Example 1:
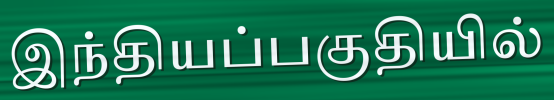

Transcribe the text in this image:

இந்தியப்பகுதியில்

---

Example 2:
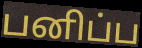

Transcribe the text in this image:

பனிப்ப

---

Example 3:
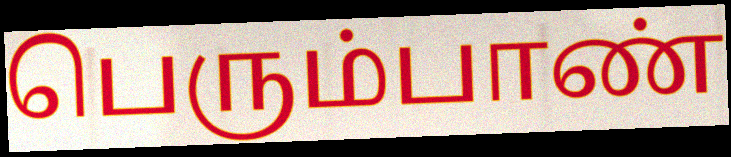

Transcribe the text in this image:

பெரும்பாண்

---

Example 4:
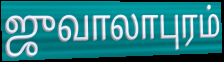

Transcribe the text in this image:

ஜுவாலாபுரம்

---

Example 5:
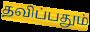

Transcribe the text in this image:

தவிப்பதும்